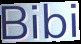
Bibi